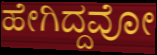
ಹೇಗಿದ್ದವೋ